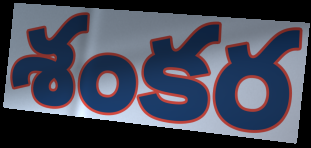
శంకర